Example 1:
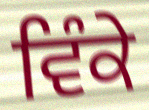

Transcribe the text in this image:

ਵਿੰਕੇ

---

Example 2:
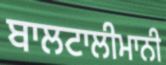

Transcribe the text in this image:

ਬਾਲਟਾਲੀਮਾਨੀ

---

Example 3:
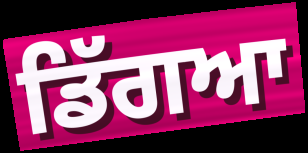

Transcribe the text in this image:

ਡਿੱਗਆ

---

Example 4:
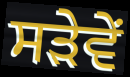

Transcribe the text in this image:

ਸੜੇਵੇਂ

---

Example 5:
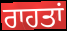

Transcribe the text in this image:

ਰਾਹਤਾਂ